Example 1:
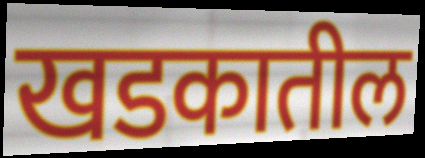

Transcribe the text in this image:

खडकातील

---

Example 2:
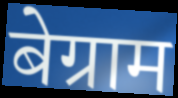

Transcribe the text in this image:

बेग्राम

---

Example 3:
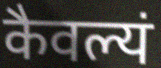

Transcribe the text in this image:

कैवल्यं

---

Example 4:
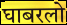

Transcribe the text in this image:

घाबरलो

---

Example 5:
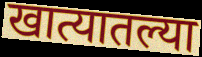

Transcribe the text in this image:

खात्यातल्या